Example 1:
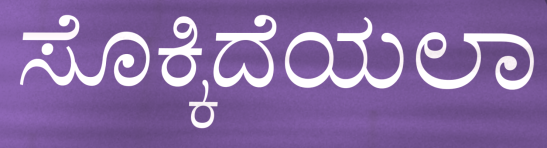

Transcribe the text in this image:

ಸೊಕ್ಕಿದೆಯಲಾ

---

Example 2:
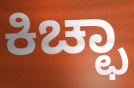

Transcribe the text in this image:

ಕಿಚ್ಛಾ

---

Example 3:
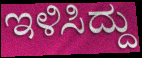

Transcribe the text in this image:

ಇಳಿಸಿದ್ದು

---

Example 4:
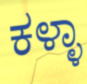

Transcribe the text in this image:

ಕಳ್ಳಾ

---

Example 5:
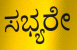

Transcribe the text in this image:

ಸಭ್ಯರೇ